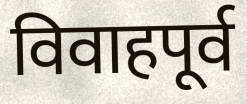
विवाहपूर्व